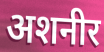
अशनीर